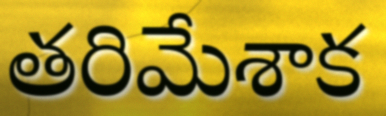
తరిమేశాక